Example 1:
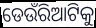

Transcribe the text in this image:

ଡେଉଁରିଆଟିକୁ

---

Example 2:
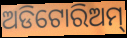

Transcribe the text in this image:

ଅଡିଟୋରିଅମ୍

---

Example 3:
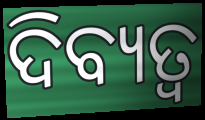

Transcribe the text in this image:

ଦିବ୍ୟତ୍ବ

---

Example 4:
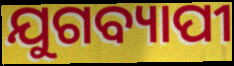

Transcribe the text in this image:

ଯୁଗବ୍ୟାପୀ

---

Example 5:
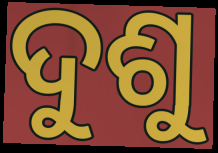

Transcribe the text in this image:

ଦୁଶୁ